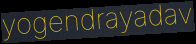
yogendrayadav